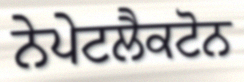
ਨੇਪੇਟਲੈਕਟੋਨ